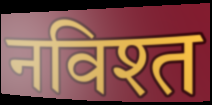
नविश्त